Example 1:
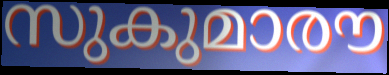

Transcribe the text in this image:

സുകുമാരൗ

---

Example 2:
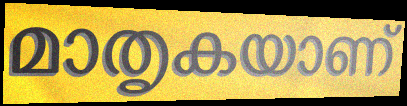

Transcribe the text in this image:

മാതൃകയാണ്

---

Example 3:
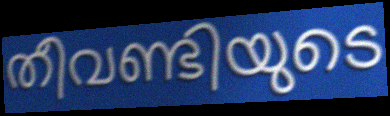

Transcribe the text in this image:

തീവണ്ടിയുടെ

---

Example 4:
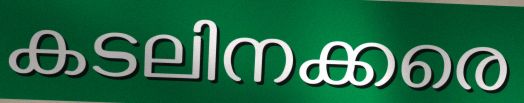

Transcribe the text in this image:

കടലിനക്കരെ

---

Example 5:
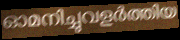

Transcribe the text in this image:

ഓമനിച്ചുവളർത്തിയ